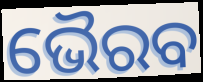
ଭୈରବ